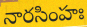
నారసింహః